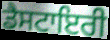
ਡੈਸਟਾਇਰੀ